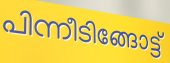
പിന്നീടിങ്ങോട്ട്